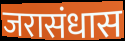
जरासंधास